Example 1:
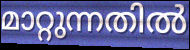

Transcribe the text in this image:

മാറ്റുന്നതിൽ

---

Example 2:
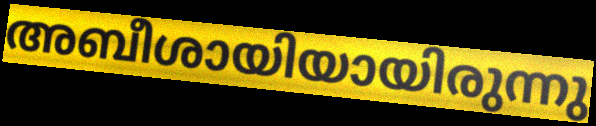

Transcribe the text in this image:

അബീശായിയായിരുന്നു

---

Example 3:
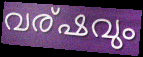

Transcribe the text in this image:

വര്ഷവും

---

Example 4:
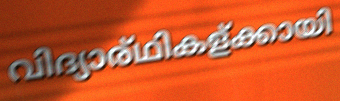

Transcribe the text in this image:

വിദ്യാര്ഥികള്ക്കായി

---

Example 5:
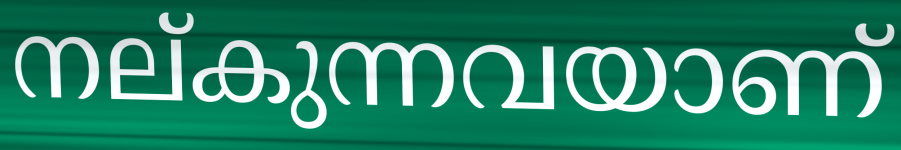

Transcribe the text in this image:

നല്കുന്നവയാണ്